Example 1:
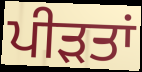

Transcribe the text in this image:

ਪੀੜਤਾਂ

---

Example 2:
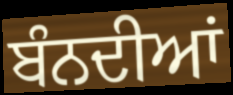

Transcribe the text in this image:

ਬੰਨਦੀਆਂ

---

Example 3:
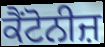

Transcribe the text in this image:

ਕੈਂਟੋਨੀਜ਼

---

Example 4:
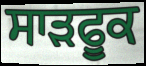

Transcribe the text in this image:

ਸਾੜਫੂਕ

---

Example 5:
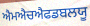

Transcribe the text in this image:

ਐਮਐਚਐਫਡਬਲਯੂ